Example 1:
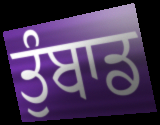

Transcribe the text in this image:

ਤੁੰਬਾਡ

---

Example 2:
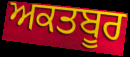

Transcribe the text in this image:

ਅਕਤਬੂਰ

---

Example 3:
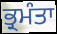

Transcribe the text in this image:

ਭ੍ਰਮੰਤਾ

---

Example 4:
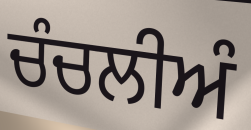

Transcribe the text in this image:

ਚੰਚਲੀਅੰ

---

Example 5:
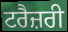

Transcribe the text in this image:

ਟਰੈਜ਼ਰੀ